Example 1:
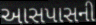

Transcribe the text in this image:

આસપાસની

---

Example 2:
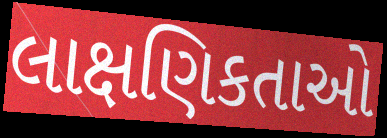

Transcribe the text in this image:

લાક્ષણિકતાઓ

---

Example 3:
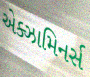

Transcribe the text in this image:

એક્ઝામિનર્સ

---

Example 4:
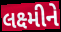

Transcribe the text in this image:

લક્ષ્મીને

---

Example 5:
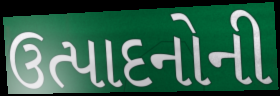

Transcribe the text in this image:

ઉત્પાદનોની